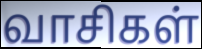
வாசிகள்